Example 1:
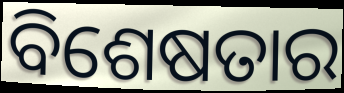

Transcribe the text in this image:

ବିଶେଷତାର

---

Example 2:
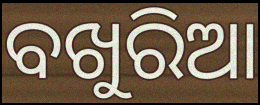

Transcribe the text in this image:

ବଖୁରିଆ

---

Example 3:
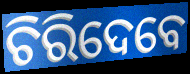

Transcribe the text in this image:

ଚିରିଦେବେ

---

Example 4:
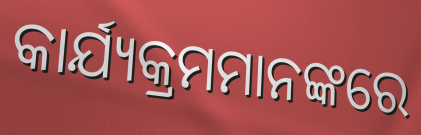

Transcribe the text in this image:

କାର୍ଯ୍ୟକ୍ରମମାନଙ୍କରେ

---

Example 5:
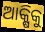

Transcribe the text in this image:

ଆକ୍ଷିକୁ